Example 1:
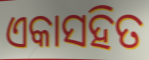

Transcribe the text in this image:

ଏକାସହିତ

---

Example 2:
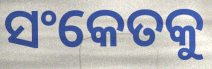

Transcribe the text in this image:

ସଂକେତକୁ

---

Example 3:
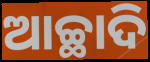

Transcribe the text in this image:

ଆଚ୍ଛାଦି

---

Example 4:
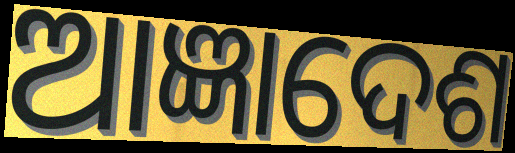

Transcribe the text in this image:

ଆଜ୍ଞାଦେଶ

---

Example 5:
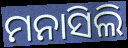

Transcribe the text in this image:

ମନାସିଲି